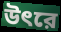
উৎরে